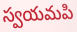
స్వయమపి